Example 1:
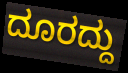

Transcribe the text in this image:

ದೂರದ್ದು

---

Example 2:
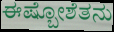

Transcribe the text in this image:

ಈಷ್ಬೋಶೆತನು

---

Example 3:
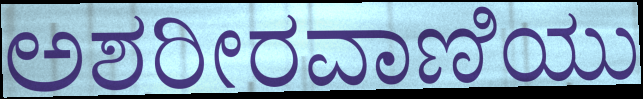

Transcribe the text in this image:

ಅಶರೀರವಾಣಿಯು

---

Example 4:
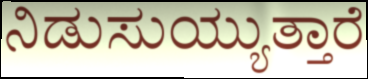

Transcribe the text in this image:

ನಿಡುಸುಯ್ಯುತ್ತಾರೆ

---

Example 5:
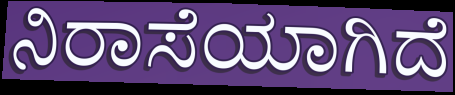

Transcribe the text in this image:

ನಿರಾಸೆಯಾಗಿದೆ